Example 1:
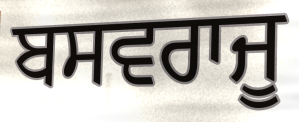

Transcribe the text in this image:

ਬਸਵਰਾਜੂ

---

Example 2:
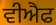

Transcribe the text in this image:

ਵੀਐਫ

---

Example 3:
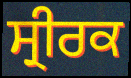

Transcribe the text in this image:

ਸ੍ਰੀਰਕ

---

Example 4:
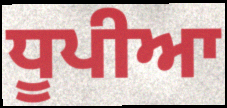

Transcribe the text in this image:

ਧੂਪੀਆ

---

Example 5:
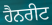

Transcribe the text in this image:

ਹੈਨਰੀਟ